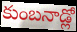
కుంబనాడ్లో